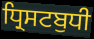
ਧ੍ਰਿਸਟਬੁਧੀ